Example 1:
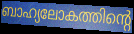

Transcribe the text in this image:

ബാഹ്യലോകത്തിന്റെ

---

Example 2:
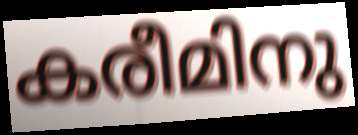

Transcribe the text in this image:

കരീമിനു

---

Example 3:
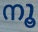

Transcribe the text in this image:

നൂ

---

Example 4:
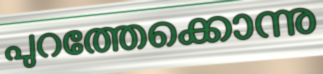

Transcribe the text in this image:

പുറത്തേക്കൊന്നു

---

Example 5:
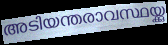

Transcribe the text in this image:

അടിയന്തരാവസ്ഥയ്ക്കു